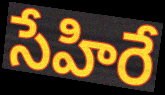
సేహిరే